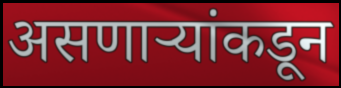
असणाऱ्यांकडून